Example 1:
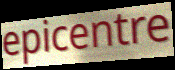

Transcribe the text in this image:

epicentre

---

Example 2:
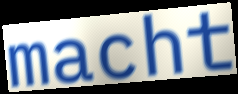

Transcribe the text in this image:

macht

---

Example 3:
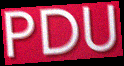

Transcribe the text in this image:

PDU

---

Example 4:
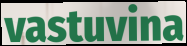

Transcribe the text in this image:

vastuvina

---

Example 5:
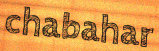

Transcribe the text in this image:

chabahar